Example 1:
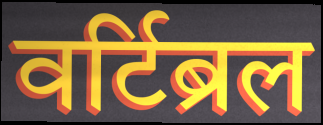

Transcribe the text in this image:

वर्टिब्रल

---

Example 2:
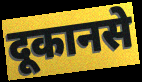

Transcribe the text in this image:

दूकानसे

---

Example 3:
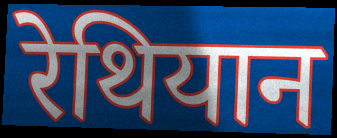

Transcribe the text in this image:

रेथियान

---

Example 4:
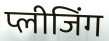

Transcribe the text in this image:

प्लीजिंग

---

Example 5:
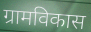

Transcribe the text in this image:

ग्रामविकास